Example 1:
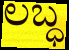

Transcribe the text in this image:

ಲಬ್ಧ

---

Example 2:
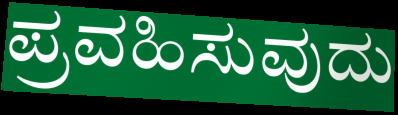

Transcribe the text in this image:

ಪ್ರವಹಿಸುವುದು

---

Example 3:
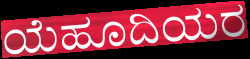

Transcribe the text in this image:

ಯೆಹೂದಿಯರ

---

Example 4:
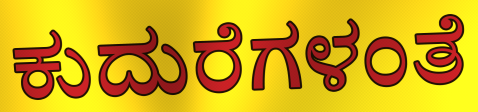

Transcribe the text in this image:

ಕುದುರೆಗಳಂತೆ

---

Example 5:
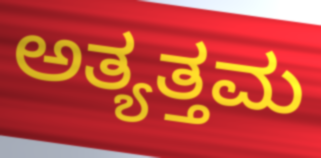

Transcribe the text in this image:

ಅತ್ಯತ್ತಮ